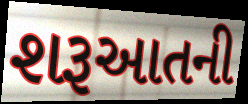
શરૂઆતની